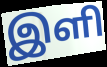
இளி